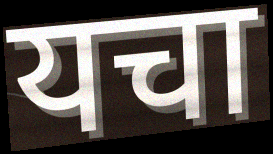
यचा